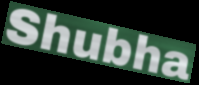
Shubha